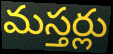
మస్తర్లు